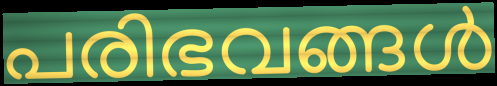
പരിഭവങ്ങൾ